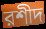
রশীদ